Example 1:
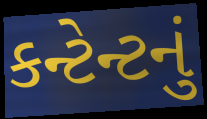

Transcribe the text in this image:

કન્ટેન્ટનું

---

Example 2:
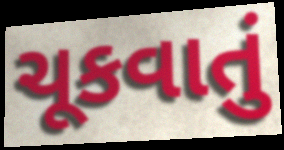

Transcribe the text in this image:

ચૂકવાતું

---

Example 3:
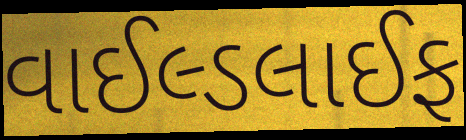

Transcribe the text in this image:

વાઈલ્ડલાઈફ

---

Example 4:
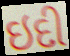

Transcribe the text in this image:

ઇદી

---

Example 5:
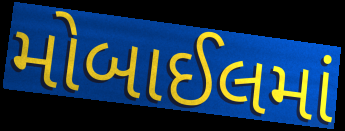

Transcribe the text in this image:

મોબાઈલમાં